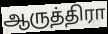
ஆருத்திரா